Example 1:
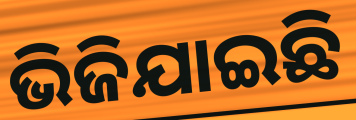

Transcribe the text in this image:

ଭିଜିଯାଇଛି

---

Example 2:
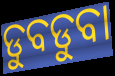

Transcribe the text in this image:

ଡୁବଡୁବା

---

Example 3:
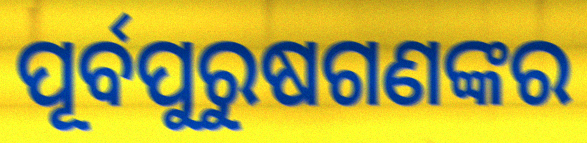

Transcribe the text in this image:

ପୂର୍ବପୁରୁଷଗଣଙ୍କର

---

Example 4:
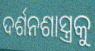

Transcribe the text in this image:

ଦର୍ଶନଶାସ୍ତ୍ରକୁ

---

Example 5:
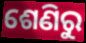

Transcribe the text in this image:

ଶେଣିରୁ